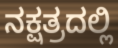
ನಕ್ಷತ್ರದಲ್ಲಿ